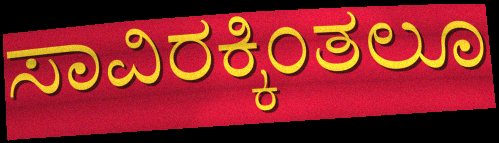
ಸಾವಿರಕ್ಕಿಂತಲೂ